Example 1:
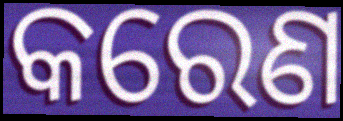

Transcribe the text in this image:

କରେଣ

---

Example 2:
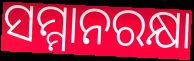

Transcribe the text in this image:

ସମ୍ମାନରକ୍ଷା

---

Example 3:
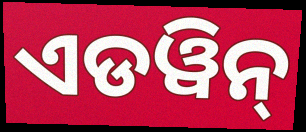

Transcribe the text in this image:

ଏଡୱିନ୍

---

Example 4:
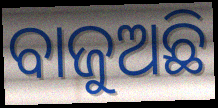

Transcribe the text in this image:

ବାଜୁଅଛି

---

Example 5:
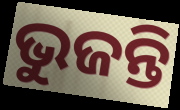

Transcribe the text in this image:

ଭୁଜନ୍ତି